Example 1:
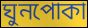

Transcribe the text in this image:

ঘুনপোকা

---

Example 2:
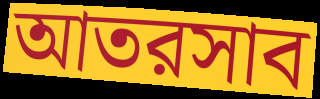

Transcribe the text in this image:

আতরসাব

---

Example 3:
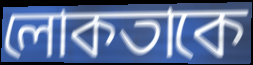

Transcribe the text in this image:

লোকতাকে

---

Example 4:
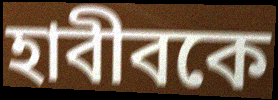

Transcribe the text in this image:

হাবীবকে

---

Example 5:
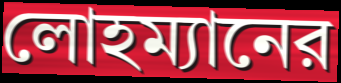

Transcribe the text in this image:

লোহম্যানের